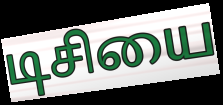
டிசியை